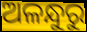
ଅଳନ୍ଧୁରୁ